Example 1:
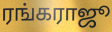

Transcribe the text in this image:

ரங்கராஜூ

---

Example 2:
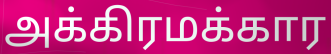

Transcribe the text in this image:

அக்கிரமக்கார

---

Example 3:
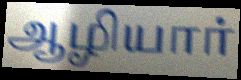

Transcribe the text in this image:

ஆழியார்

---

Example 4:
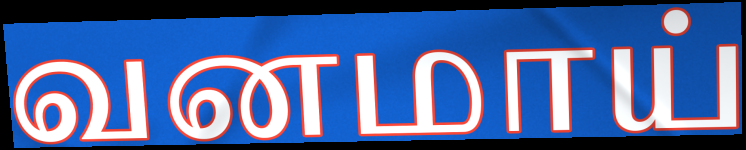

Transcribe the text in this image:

வனமாய்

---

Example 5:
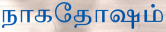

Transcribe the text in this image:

நாகதோஷம்